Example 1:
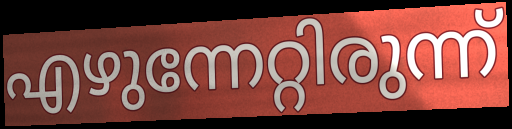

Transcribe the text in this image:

എഴുന്നേറ്റിരുന്ന്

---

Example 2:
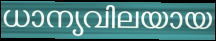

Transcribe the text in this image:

ധാന്യവിലയായ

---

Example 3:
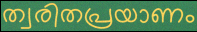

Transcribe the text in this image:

ത്വരിതപ്രയാണം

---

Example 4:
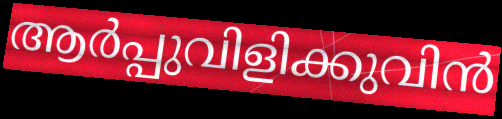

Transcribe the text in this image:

ആർപ്പുവിളിക്കുവിൻ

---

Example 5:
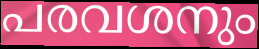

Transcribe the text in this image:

പരവശനും